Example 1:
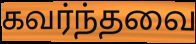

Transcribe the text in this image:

கவர்ந்தவை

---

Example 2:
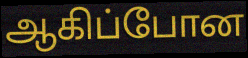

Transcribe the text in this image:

ஆகிப்போன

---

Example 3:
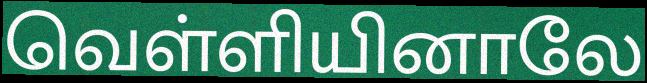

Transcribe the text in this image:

வெள்ளியினாலே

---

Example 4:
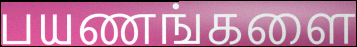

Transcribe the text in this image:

பயணங்களை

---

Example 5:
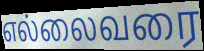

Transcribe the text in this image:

எல்லைவரை